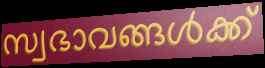
സ്വഭാവങ്ങൾക്ക്